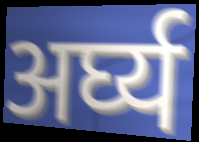
अर्घ्य